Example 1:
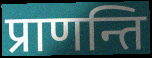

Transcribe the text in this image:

प्राणन्ति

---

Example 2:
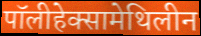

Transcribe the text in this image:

पॉलीहेक्सामेथिलीन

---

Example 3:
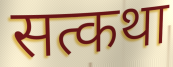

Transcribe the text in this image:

सत्कथा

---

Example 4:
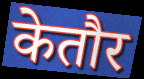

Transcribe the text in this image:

केतौर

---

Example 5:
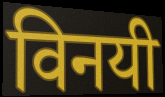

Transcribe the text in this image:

विनयी